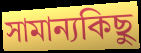
সামান্যকিছু